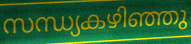
സന്ധ്യകഴിഞ്ഞു